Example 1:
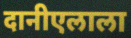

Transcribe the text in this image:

दानीएलाला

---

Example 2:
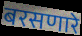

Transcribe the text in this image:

बरसणारे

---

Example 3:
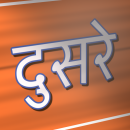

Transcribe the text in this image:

दुसरे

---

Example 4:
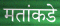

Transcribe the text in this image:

मतांकडे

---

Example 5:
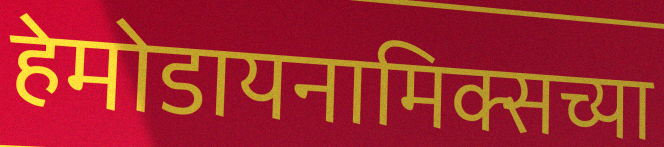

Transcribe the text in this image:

हेमोडायनामिक्सच्या